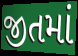
જીતમાં